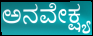
ಅನವೇಕ್ಷ್ಯ